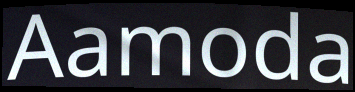
Aamoda